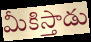
మీకిస్తాడు